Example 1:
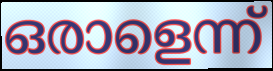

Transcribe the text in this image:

ഒരാളെന്ന്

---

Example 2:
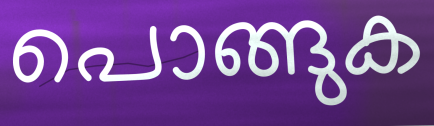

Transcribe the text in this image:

പൊങ്ങുക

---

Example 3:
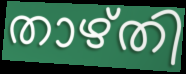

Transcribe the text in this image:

താഴ്തി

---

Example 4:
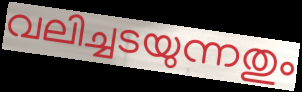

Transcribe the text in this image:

വലിച്ചടയുന്നതും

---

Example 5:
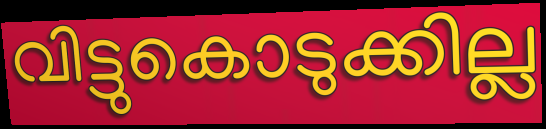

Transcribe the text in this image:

വിട്ടുകൊടുക്കില്ല